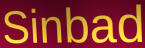
Sinbad